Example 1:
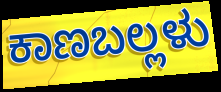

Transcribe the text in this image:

ಕಾಣಬಲ್ಲಳು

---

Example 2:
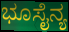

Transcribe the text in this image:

ಭೂಸೈನ್ಯ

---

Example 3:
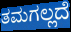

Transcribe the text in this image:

ತಮಗಲ್ಲದೆ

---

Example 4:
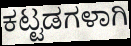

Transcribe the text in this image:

ಕಟ್ಟಡಗಳಾಗಿ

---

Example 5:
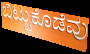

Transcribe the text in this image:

ಬಿಟ್ಟುಕೊಡೆವು